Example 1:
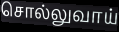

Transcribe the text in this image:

சொல்லுவாய்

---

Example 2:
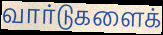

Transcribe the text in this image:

வார்டுகளைக்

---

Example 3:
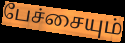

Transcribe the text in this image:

பேச்சையும்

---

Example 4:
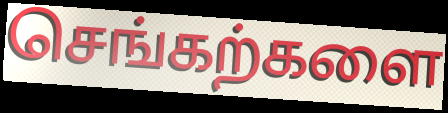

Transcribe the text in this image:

செங்கற்களை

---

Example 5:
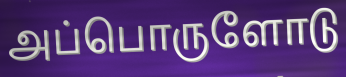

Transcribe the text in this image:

அப்பொருளோடு